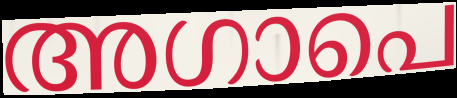
അഗാപെ